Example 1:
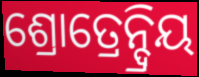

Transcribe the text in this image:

ଶ୍ରୋତ୍ରେନ୍ଦ୍ରିୟ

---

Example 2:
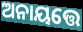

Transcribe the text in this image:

ଅନାୟତ୍ତେ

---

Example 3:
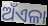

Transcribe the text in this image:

ଅଁଏଳା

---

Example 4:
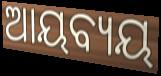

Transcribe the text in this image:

ଆୟବ୍ୟୟ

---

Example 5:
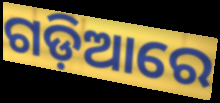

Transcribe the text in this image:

ଗଡ଼ିଆରେ